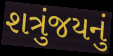
શત્રુંજયનું